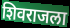
शिवराजला